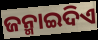
ଜନ୍ମାଇଦିଏ